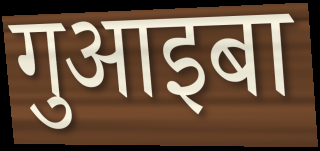
गुआइबा